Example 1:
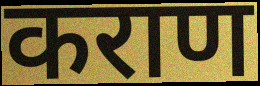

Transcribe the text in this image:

कराण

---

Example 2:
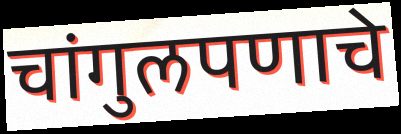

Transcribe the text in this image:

चांगुलपणाचे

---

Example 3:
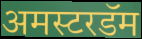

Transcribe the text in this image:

अमस्टरडॅम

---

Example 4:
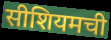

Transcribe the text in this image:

सीशियमची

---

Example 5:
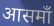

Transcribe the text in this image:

आसमाँ